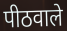
पीठवाले